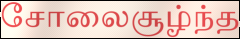
சோலைசூழ்ந்த